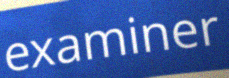
examiner